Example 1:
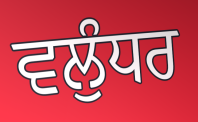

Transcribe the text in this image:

ਵਲੁੰਧਰ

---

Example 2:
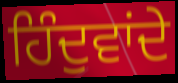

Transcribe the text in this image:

ਹਿੰਦੁਵਾਂਦੇ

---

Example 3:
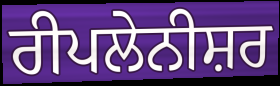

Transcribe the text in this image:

ਰੀਪਲੇਨੀਸ਼ਰ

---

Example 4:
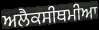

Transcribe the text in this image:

ਅਲੈਕਸੀਥਮੀਆ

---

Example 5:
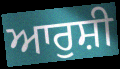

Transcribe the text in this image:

ਆਰੁਸ਼ੀ